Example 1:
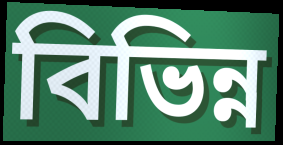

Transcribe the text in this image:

বিভিন্ন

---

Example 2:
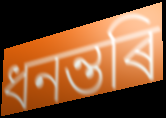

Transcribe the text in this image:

ধনন্তৰি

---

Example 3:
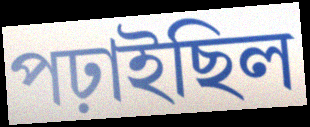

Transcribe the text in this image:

পঢ়াইছিল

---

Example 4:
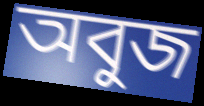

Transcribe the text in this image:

অবুজ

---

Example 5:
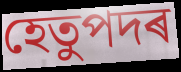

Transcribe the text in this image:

হেতুপদৰ